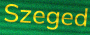
Szeged